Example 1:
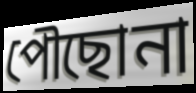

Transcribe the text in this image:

পৌছোনা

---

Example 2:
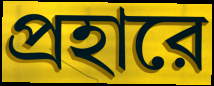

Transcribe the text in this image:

প্রহারে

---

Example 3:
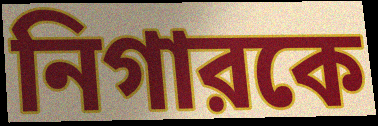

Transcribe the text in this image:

নিগারকে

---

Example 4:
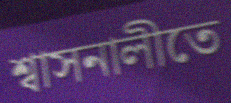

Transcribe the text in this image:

শ্বাসনালীতে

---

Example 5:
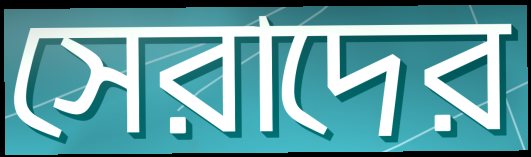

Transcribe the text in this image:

সেরাদের